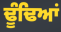
ਢੂੰਢਿਆਂ